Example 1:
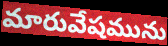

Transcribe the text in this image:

మారువేషమును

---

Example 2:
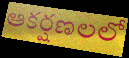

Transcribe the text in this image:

ఆకర్షణలలో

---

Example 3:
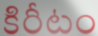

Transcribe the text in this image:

కిరీటం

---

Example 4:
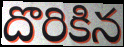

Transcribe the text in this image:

దొరికిన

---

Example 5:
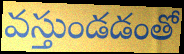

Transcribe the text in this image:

వస్తుండడంతో